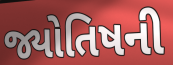
જ્યોતિષની